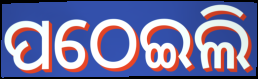
ପଠେଇଲି